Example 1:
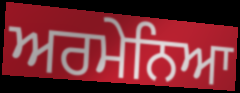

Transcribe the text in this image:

ਅਰਮੇਨਿਆ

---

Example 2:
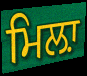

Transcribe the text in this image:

ਮਿਲ਼ਾ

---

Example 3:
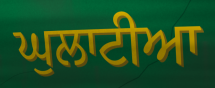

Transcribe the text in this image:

ਘੁਲਾਟੀਆ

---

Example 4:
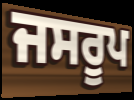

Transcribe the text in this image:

ਜਸਰੂਪ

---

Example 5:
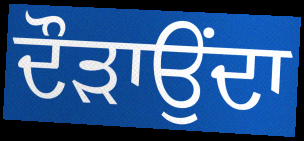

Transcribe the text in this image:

ਦੌੜਾਉਂਦਾ